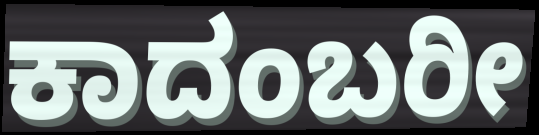
ಕಾದಂಬರೀ